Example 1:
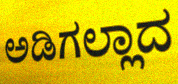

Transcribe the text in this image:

ಅಡಿಗಲ್ಲಾದ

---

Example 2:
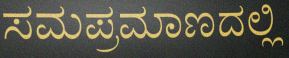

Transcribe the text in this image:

ಸಮಪ್ರಮಾಣದಲ್ಲಿ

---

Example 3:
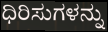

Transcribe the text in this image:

ಧಿರಿಸುಗಳನ್ನು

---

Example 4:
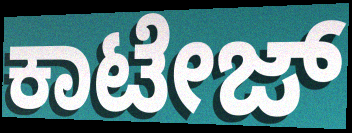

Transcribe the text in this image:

ಕಾಟೇಜ್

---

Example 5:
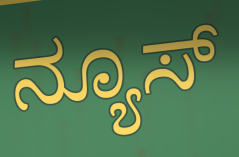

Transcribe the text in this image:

ನ್ಯೂಸ್